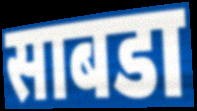
साबडा